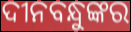
ଦୀନବନ୍ଧୁଙ୍କର